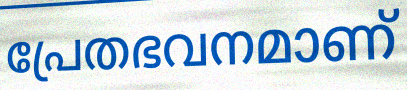
പ്രേതഭവനമാണ്